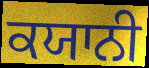
ਕਯਾਨੀ